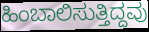
ಹಿಂಬಾಲಿಸುತ್ತಿದ್ದವು